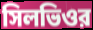
সিলভিওর